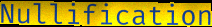
Nullification